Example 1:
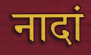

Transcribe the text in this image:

नादां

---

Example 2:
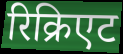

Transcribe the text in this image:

रिक्रिएट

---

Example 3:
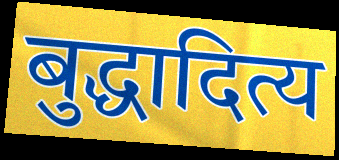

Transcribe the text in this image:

बुद्धादित्य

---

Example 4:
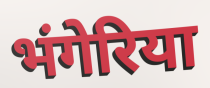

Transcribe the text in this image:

भंगेरिया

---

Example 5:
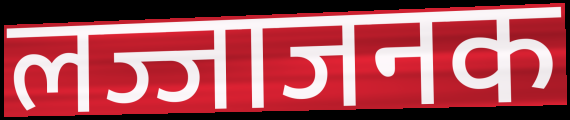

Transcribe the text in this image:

लज्जाजनक